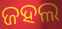
ଜହଲ